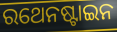
ରଥେନଷ୍ଟାଇନ